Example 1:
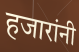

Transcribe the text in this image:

हजारांनी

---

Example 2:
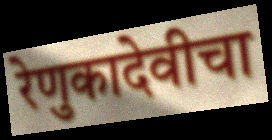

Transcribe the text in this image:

रेणुकादेवीचा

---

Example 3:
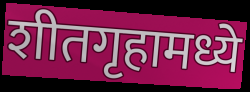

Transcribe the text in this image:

शीतगृहामध्ये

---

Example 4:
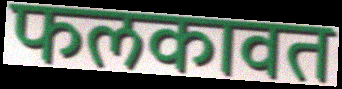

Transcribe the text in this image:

फलकावत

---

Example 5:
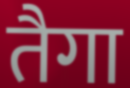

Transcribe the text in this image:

तैगा